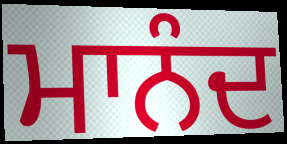
ਮਾਨੰਦ